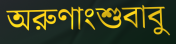
অরুণাংশুবাবু